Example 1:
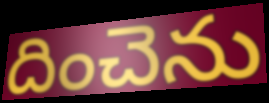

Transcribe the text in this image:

దించెను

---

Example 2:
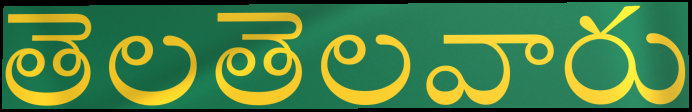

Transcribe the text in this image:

తెలతెలవారు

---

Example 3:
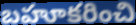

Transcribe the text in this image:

బహూకరించి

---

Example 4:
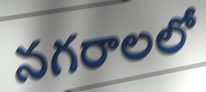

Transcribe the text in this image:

నగరాలలో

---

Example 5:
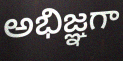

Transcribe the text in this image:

అభిజ్ఞగా